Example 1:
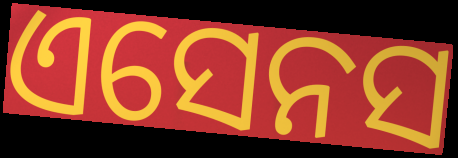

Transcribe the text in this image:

ଏସେନସ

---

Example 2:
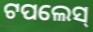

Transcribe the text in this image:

ଟପଲେସ୍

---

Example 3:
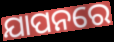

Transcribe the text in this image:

ଯାପନରେ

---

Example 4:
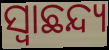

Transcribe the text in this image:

ସ୍ୱାଛନ୍ଦ୍ୟ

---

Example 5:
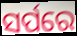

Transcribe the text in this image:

ସର୍ପରେ